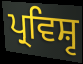
ਪ੍ਰਵਿਸ਼੍ਟ